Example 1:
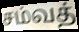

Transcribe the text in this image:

சம்வத்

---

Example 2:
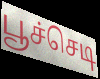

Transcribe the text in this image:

பூச்செடி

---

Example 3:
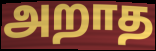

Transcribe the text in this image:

அறாத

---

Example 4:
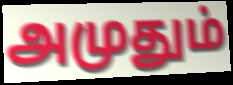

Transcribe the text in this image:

அமுதும்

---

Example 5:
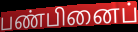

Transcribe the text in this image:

பண்பினைப்